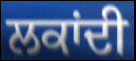
ਲਕਾਂਦੀ